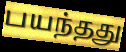
பயந்தது